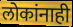
लोकांनाही